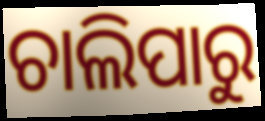
ଚାଲିପାରୁ